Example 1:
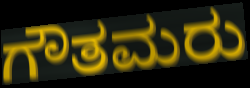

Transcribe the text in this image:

ಗೌತಮರು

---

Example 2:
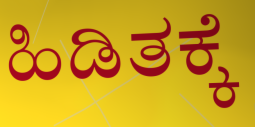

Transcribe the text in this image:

ಹಿಡಿತಕ್ಕೆ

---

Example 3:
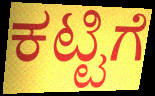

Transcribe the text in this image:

ಕಟ್ಟಿಗೆ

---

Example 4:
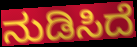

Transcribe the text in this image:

ನುಡಿಸಿದೆ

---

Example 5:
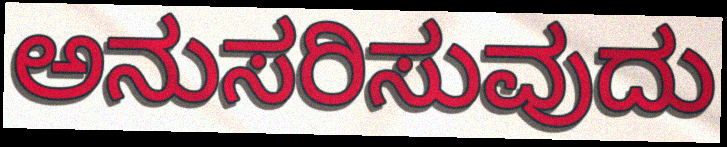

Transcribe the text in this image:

ಅನುಸರಿಸುವುದು